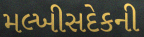
મલ્ખીસદેકની